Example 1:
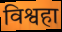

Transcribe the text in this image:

विश्वहा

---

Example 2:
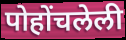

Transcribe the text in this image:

पोहोंचलेली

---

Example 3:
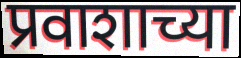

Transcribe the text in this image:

प्रवाशाच्या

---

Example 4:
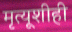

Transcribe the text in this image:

मृत्यूशीही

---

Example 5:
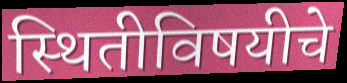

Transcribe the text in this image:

स्थितीविषयीचे